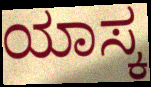
ಯಾಸ್ಕ